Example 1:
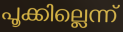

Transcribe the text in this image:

പൂക്കില്ലെന്ന്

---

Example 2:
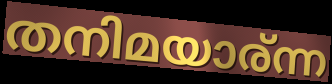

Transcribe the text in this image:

തനിമയാര്ന്ന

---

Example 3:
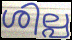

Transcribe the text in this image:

ശില്പ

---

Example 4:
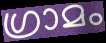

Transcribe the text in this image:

ഗ്രാമം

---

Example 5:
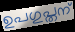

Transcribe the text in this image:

ഉപഗുപ്തന്